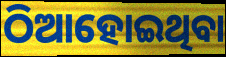
ଠିଆହୋଇଥିବା